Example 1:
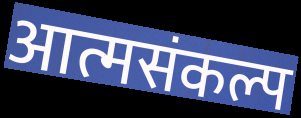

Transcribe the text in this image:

आत्मसंकल्प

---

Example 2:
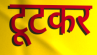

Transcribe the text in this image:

टूटकर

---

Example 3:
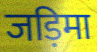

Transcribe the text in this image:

जड़िमा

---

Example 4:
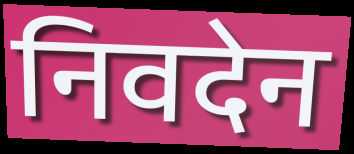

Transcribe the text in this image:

निवदेन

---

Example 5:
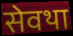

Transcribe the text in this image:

सेवथा